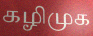
கழிமுக